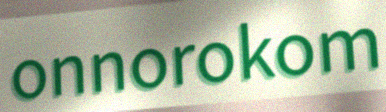
onnorokom